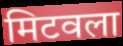
मिटवला